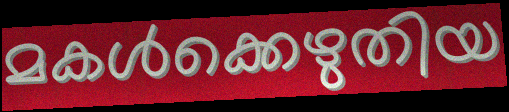
മകൾക്കെഴുതിയ